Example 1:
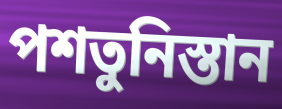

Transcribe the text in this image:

পশতুনিস্তান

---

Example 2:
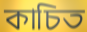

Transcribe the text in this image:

কাচিত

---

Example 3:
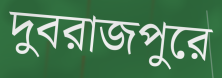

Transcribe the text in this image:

দুবরাজপুরে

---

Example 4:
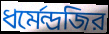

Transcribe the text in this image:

ধর্মেন্দ্রজির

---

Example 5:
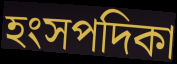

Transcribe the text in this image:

হংসপদিকা